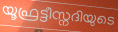
യൂഫ്രട്ടീസ്നദിയുടെ